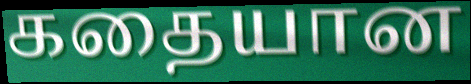
கதையான